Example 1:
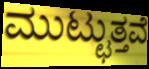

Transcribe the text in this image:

ಮುಟ್ಟುತ್ತವೆ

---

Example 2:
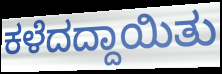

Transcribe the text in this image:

ಕಳೆದದ್ದಾಯಿತು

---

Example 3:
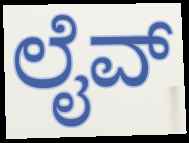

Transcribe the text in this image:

ಲೈವ್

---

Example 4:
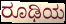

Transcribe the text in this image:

ರೂಢಿಯ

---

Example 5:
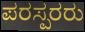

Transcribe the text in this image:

ಪರಸ್ಪರರು